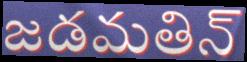
జడమతిన్